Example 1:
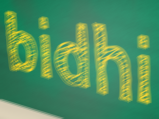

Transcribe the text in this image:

bidhi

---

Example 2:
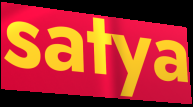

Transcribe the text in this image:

satya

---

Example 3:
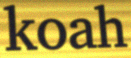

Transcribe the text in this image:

koah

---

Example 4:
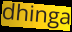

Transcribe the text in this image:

dhinga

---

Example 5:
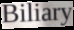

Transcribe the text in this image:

Biliary